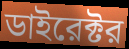
ডাইরেক্টর